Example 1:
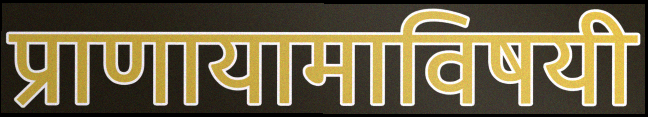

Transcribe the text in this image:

प्राणायामाविषयी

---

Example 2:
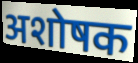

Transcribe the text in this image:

अशोषक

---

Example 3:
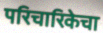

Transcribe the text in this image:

परिचारिकेचा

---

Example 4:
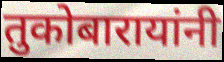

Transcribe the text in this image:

तुकोबारायांनी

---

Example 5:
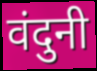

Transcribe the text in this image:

वंदुनी